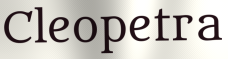
Cleopetra